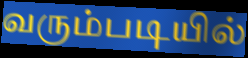
வரும்படியில்